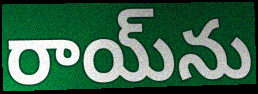
రాయ్‌ను